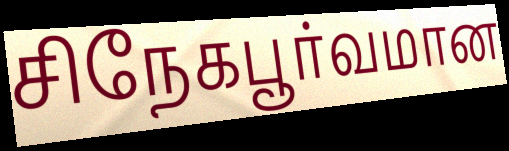
சிநேகபூர்வமான